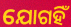
ଯୋଗହିଁ